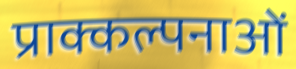
प्राक्कल्पनाओं